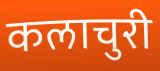
कलाचुरी